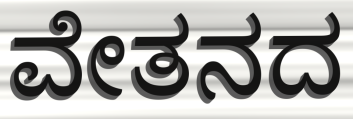
ವೇತನದ